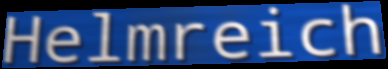
Helmreich